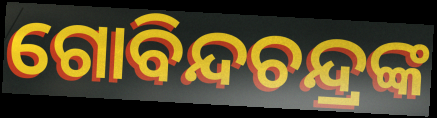
ଗୋବିନ୍ଦଚନ୍ଦ୍ରଙ୍କ